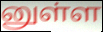
னுள்ள